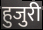
हुजुरी